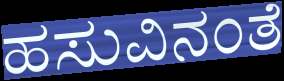
ಹಸುವಿನಂತೆ